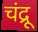
चंद्रू